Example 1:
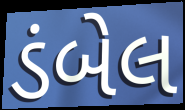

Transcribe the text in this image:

ડંબેલ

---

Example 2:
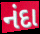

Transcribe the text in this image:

નંદા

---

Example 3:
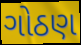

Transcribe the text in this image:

ગોઠણ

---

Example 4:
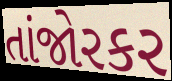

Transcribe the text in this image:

તાંજોરકર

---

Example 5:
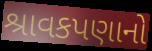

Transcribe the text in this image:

શ્રાવકપણાનો